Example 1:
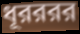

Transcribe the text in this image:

ধূরররর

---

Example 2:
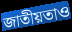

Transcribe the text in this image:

জাতীয়তাও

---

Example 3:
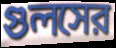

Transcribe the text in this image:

গুলসের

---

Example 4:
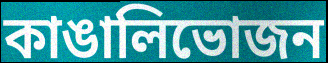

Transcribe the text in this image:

কাঙালিভোজন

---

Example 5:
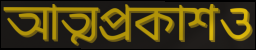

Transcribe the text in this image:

আত্মপ্রকাশও